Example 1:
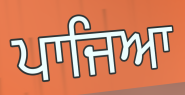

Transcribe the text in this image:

ਪਾਜਿਆ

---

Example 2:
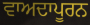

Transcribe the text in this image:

ਵਾਅਦਾਪੂਰਨ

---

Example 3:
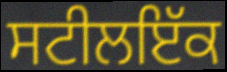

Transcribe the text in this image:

ਸਟੀਲਇੱਕ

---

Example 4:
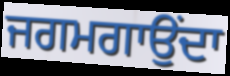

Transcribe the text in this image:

ਜਗਮਗਾਉਂਦਾ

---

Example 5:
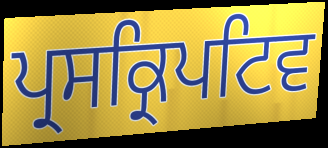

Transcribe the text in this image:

ਪ੍ਰਸਕ੍ਰਿਪਟਿਵ